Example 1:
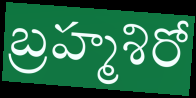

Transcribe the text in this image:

బ్రహ్మశిరో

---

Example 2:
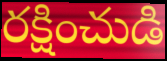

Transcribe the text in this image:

రక్షించుడి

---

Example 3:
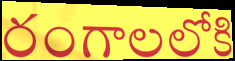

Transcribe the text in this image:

రంగాలలోకి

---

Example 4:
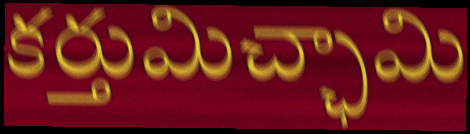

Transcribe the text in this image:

కర్తుమిచ్ఛామి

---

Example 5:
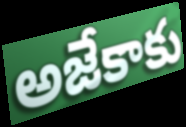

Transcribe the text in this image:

అజేకాకు